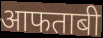
आफताबी